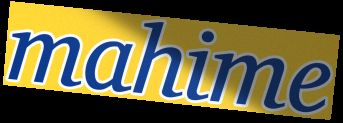
mahime